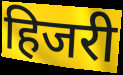
हिजरी